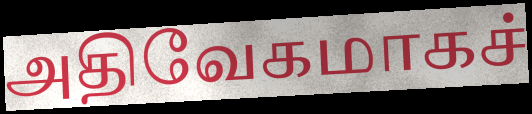
அதிவேகமாகச்